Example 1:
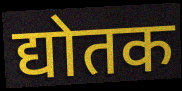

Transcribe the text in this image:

द्योतक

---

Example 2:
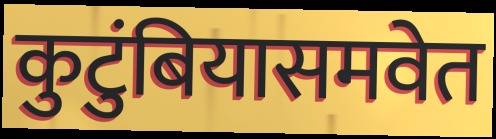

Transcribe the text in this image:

कुटुंबियासमवेत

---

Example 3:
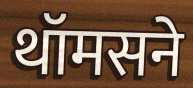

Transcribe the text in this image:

थॉमसने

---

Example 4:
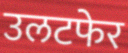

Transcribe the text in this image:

उलटफेर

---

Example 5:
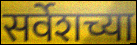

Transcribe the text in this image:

सर्वेशच्या